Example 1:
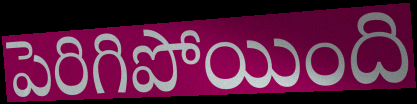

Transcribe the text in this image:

పెరిగిపోయింది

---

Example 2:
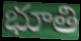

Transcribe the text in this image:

భూతి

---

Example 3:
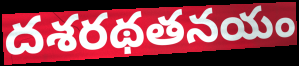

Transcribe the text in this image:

దశరథతనయం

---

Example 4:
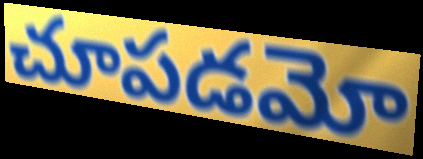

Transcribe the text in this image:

చూపడమో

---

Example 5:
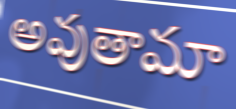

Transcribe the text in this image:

అవుతామా